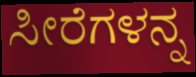
ಸೀರೆಗಳನ್ನ